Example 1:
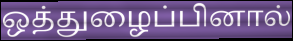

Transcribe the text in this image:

ஒத்துழைப்பினால்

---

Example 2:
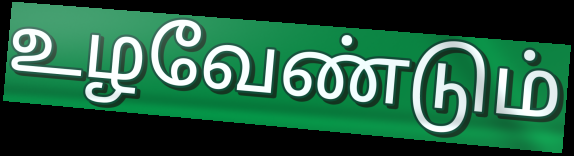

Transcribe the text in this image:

உழவேண்டும்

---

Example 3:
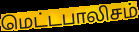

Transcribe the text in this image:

மெட்டபாலிசம்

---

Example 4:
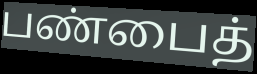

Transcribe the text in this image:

பண்பைத்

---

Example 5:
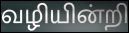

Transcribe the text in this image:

வழியின்றி